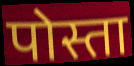
पोस्ता